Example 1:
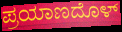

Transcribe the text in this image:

ಪ್ರಯಾಣದೊಳ್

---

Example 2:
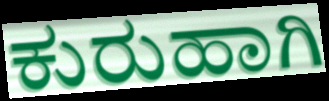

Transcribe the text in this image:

ಕುರುಹಾಗಿ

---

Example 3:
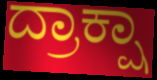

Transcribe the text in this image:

ದ್ರಾಕ್ಷಾ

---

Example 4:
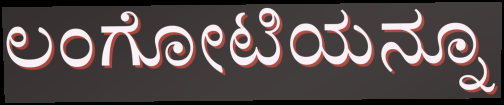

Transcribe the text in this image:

ಲಂಗೋಟಿಯನ್ನೂ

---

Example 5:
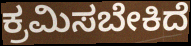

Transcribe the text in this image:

ಕ್ರಮಿಸಬೇಕಿದೆ